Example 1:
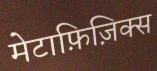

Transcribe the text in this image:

मेटाफ़िज़िक्स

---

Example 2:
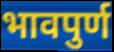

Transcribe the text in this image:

भावपुर्ण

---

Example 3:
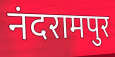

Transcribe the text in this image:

नंदरामपुर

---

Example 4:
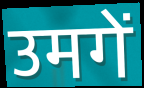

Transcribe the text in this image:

उमगें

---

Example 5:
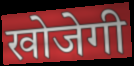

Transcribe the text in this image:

खोजेगी